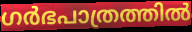
ഗർഭപാത്രത്തിൽ